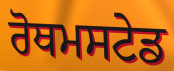
ਰੋਥਮਸਟੇਡ